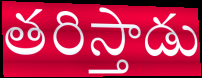
తరిస్తాడు